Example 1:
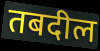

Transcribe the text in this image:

तबदील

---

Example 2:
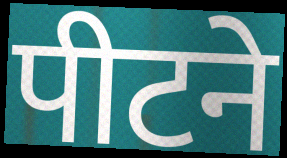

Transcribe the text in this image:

पीटने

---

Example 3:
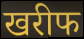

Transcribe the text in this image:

खरीफ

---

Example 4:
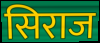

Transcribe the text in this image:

सिराज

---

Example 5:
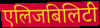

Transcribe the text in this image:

एलिजबिलिटी